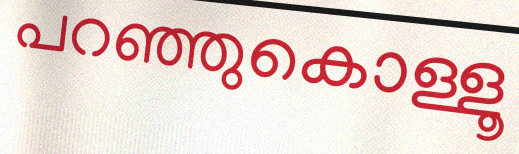
പറഞ്ഞുകൊള്ളൂ